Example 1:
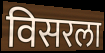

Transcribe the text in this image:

विसरला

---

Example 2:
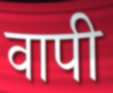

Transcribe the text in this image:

वापी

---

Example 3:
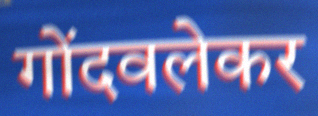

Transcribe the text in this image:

गोंदवलेकर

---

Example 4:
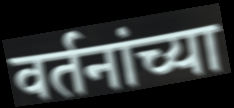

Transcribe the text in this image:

वर्तनांच्या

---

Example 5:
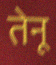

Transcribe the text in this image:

तेनू